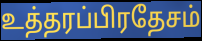
உத்தரப்பிரதேசம்